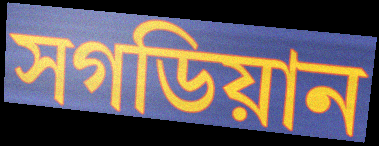
সগডিয়ান